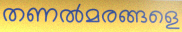
തണൽമരങ്ങളെ